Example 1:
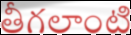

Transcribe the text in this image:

తీగలాంటి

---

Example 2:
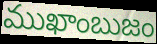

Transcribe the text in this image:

ముఖాంబుజం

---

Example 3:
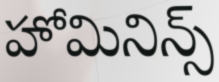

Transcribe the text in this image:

హోమినిన్స్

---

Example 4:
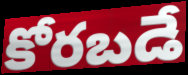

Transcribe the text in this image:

కోరబడే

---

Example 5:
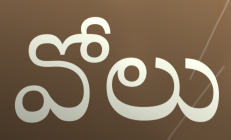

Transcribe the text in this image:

వోలు